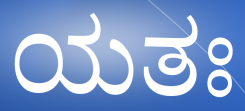
ಯತಃ